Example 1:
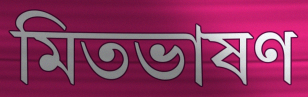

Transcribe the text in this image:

মিতভাষণ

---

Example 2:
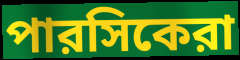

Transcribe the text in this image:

পারসিকেরা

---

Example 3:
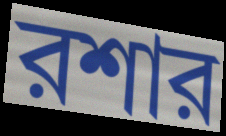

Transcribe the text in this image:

রশার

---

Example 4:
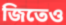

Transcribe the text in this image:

জিতেও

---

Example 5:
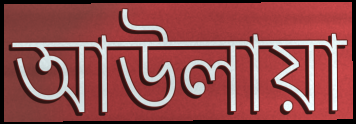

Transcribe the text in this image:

আউলায়া